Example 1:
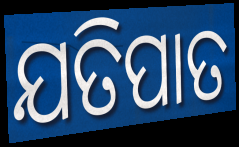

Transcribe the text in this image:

ଯତିପାତ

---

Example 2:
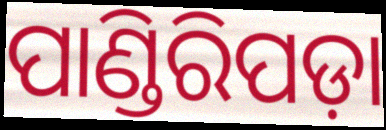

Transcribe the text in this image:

ପାଣ୍ଡିରିପଡ଼ା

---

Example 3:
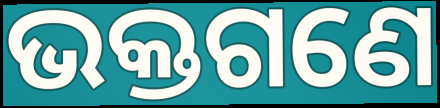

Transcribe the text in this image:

ଭକ୍ତଗଣେ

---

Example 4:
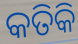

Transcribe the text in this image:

କତିକି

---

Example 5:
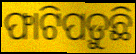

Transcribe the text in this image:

ଫାଟିପଡ଼ୁଛି